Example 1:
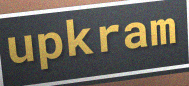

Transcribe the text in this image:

upkram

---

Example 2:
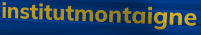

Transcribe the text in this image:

institutmontaigne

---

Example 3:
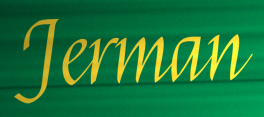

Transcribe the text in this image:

Jerman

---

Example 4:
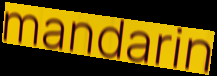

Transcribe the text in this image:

mandarin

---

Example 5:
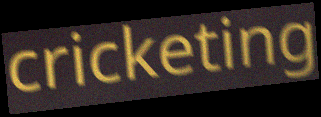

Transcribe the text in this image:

cricketing